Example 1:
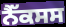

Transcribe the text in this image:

ਨੈੱਕਸਸ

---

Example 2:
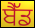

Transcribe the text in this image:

ਬੈੱਡ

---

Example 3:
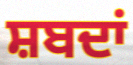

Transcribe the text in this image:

ਸ਼ਬਦਾਂ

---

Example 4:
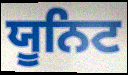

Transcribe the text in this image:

ਯੂਨਿਟ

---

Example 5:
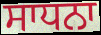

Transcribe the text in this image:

ਸਾਧਨਾ